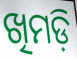
ଖିମଡ଼ି